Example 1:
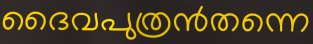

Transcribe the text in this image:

ദൈവപുത്രൻതന്നെ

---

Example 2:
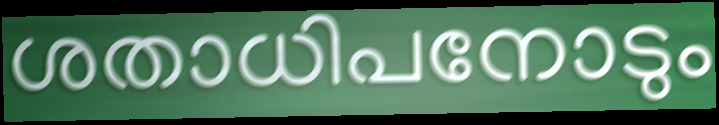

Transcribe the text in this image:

ശതാധിപനോടും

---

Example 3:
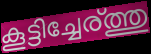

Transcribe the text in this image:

കൂട്ടിച്ചേര്ത്തു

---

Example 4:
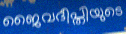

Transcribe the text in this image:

ജൈവദീപ്തിയുടെ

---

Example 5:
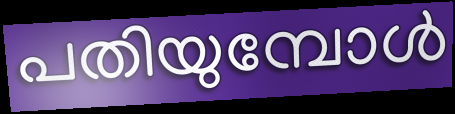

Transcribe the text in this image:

പതിയുമ്പോൾ